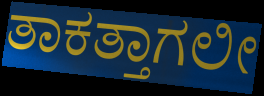
ತಾಕತ್ತಾಗಲೀ